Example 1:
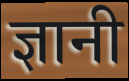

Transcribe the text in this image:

ज्ञानी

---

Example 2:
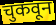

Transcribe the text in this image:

चुकवून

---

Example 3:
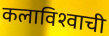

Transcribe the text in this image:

कलाविश्वाची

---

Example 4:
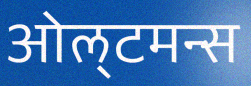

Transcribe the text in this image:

ओल्टमन्स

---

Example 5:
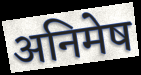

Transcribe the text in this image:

अनिमेष